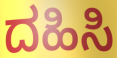
ದಹಿಸಿ